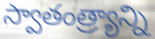
స్వాతంత్ర్యాన్ని